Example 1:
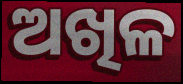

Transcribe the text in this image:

ଅଖିଳ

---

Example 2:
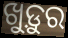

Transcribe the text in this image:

ଖୁଡ଼ୁର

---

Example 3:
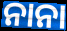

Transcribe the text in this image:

ନାନା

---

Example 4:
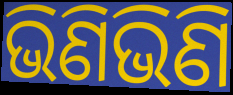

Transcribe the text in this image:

ଭିଣିଭିଣି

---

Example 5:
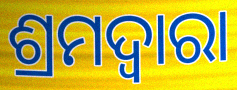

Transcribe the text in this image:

ଶ୍ରମଦ୍ୱାରା